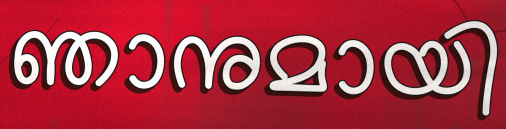
ഞാനുമായി